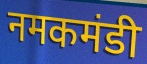
नमकमंडी